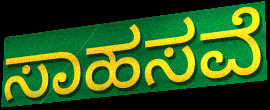
ಸಾಹಸವೆ